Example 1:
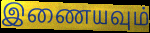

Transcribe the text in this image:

இணையவும்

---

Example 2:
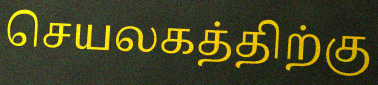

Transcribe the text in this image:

செயலகத்திற்கு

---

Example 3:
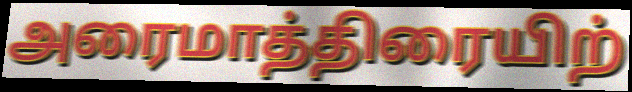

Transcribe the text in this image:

அரைமாத்திரையிற்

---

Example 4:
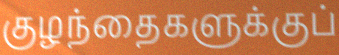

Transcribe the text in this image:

குழந்தைகளுக்குப்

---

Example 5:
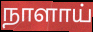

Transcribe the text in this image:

நாளாய்